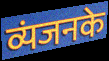
व्यंजनके